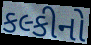
કલ્કીનો